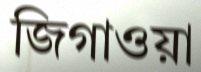
জিগাওয়া